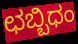
ಛಬ್ಬಿಧಂ